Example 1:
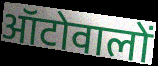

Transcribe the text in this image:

ऑटोवालों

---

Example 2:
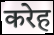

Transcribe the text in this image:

करेह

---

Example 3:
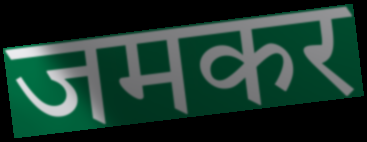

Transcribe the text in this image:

जमकर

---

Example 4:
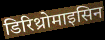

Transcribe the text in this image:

डिरिथ्रोमाइसिन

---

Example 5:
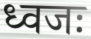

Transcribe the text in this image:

ध्वजः